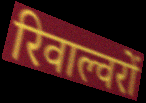
रिवाल्वरों